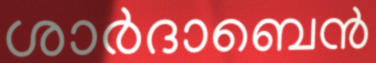
ശാർദാബെൻ